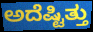
ಅದೆಷ್ಟಿತ್ತು